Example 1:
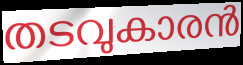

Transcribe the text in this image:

തടവുകാരൻ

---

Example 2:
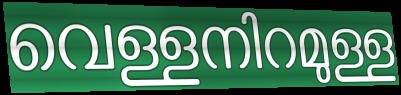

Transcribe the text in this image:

വെള്ളനിറമുള്ള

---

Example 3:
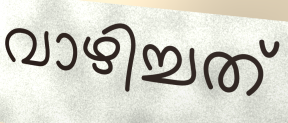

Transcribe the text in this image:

വാഴിച്ചത്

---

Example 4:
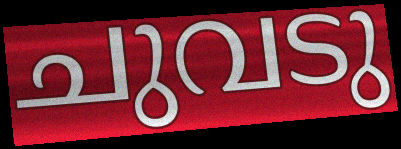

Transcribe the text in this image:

ചുവടു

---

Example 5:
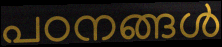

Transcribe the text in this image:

പഠനങ്ങൾ